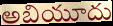
అబియూదు